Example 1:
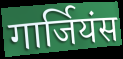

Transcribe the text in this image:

गार्जियंस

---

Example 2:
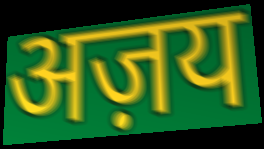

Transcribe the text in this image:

अज़य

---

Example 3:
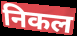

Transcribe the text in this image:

निकल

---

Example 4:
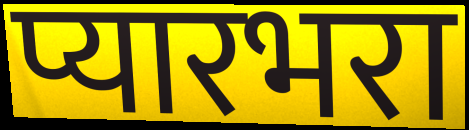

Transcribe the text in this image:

प्यारभरा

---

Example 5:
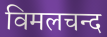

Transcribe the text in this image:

विमलचन्द